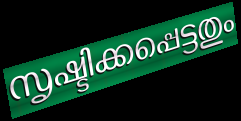
സൃഷ്ടിക്കപ്പെട്ടതും